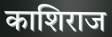
काशिराज